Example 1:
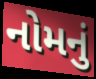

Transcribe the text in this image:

નોમનું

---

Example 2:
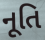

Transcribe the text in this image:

નૂતિ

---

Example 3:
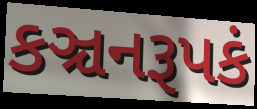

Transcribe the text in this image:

કઞ્ચનરૂપકં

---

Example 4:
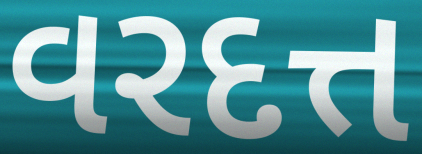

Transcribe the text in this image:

વરદત્ત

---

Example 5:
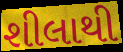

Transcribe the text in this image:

શીલાથી